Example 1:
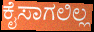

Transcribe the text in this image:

ಕೈಸಾಗಲಿಲ್ಲ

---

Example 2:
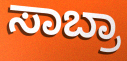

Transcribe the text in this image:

ಸಾಬ್ರಾ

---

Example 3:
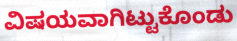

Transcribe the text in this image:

ವಿಷಯವಾಗಿಟ್ಟುಕೊಂಡು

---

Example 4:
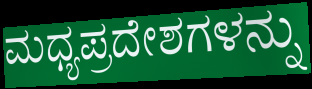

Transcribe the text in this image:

ಮಧ್ಯಪ್ರದೇಶಗಳನ್ನು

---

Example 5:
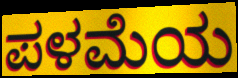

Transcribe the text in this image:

ಪಳಮೆಯ